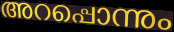
അറപ്പൊന്നും